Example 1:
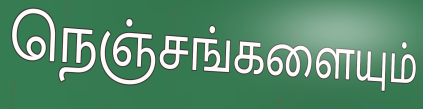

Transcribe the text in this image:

நெஞ்சங்களையும்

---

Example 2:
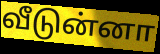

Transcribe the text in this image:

வீடுன்னா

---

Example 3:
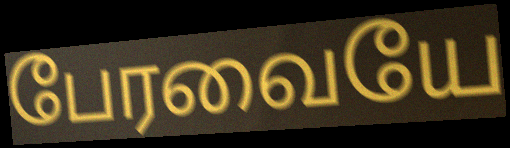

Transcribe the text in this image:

பேரவையே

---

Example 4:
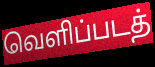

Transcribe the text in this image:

வெளிப்படத்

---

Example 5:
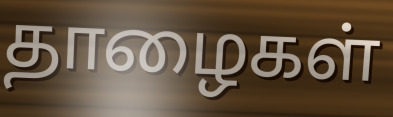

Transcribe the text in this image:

தாழைகள்